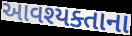
આવશ્યક્તાના